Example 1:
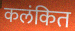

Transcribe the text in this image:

कलंकित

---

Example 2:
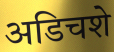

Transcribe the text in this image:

अडिचशे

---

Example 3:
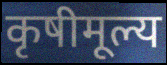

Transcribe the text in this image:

कृषीमूल्य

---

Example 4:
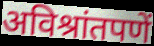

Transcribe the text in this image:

अविश्रांतपणें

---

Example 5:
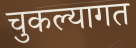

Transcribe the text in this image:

चुकल्यागत